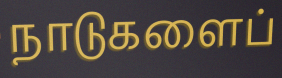
நாடுகளைப்